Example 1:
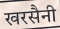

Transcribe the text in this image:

खरसैनी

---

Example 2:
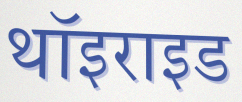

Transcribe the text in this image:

थॉइराइड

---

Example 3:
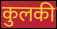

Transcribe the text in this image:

कुलकी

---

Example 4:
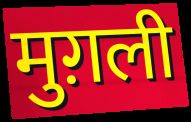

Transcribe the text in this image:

मुग़ली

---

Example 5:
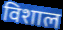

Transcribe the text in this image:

विशाल